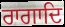
ਰਾਗਾਦਿ